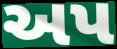
અપ